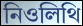
নিওলিথি